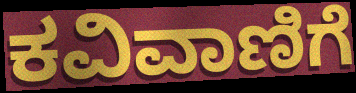
ಕವಿವಾಣಿಗೆ